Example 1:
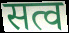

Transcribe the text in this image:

सत्व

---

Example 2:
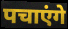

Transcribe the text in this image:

पचाएंगे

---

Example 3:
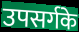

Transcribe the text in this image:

उपसर्गके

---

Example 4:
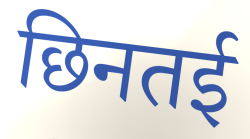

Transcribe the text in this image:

छिनतई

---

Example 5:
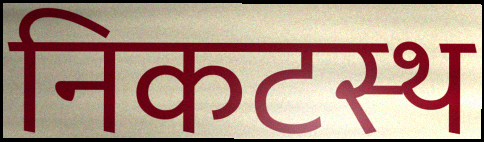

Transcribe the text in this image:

निकटस्थ